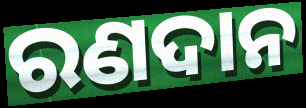
ରଣଦାନ